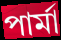
পার্মা